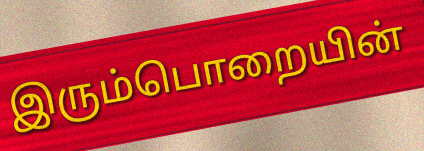
இரும்பொறையின்